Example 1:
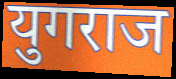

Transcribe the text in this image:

युगराज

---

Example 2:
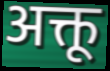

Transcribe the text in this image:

अक्तू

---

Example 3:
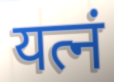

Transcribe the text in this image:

यत्नं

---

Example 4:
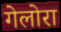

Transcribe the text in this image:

गेलोरा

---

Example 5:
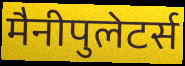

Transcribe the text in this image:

मैनीपुलेटर्स